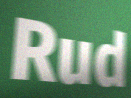
Rud